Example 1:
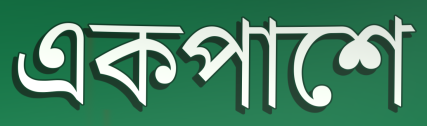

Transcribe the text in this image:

একপাশে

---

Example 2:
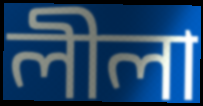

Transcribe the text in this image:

লীলা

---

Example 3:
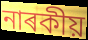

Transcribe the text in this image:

নাৰকীয়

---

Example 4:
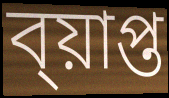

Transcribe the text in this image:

ব্য়াপ্ত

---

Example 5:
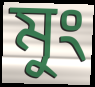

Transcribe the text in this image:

মুং